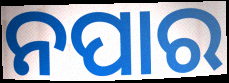
ନପାର